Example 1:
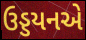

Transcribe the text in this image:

ઉડ્ડયનએ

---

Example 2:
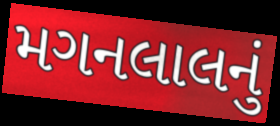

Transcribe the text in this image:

મગનલાલનું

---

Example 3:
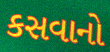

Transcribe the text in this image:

કસવાનો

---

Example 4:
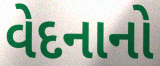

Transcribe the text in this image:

વેદનાનો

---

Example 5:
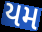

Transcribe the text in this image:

યમ